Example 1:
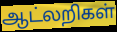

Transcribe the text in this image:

ஆட்லறிகள்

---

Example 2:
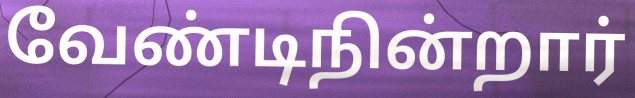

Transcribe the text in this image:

வேண்டிநின்றார்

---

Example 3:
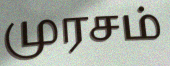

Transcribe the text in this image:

முரசம்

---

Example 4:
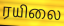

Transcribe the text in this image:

ரயிலை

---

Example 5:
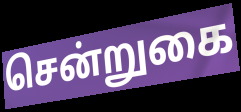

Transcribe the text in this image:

சென்றுகை